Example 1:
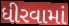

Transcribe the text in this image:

ધીરવામાં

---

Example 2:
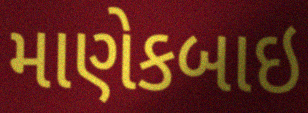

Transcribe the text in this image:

માણેકબાઇ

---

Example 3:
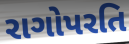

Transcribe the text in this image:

રાગોપરતિ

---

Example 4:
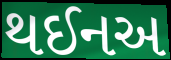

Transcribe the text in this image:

થઈનઅ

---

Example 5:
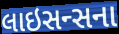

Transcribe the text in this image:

લાઇસન્સના